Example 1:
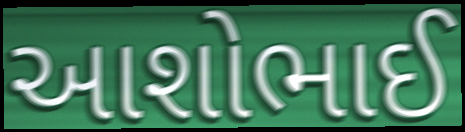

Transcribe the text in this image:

આશોભાઈ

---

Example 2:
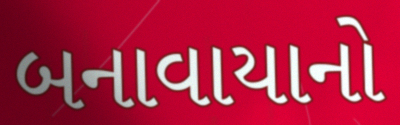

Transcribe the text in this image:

બનાવાયાનો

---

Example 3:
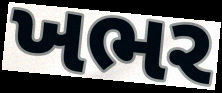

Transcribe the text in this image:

ખભર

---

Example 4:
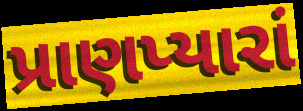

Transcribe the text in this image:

પ્રાણપ્યારાં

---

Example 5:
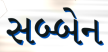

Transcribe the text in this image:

સબ્બેન